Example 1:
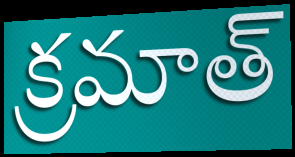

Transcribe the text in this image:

క్రమాత్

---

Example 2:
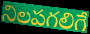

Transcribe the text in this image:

నిలపగలిగే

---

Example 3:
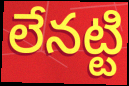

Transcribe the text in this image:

లేనట్టి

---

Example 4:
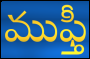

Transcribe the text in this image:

ముఫ్తీ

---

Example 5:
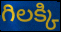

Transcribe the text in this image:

గిలక్కి